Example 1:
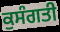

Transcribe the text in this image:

ਕੁਸੰਗਤੀ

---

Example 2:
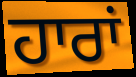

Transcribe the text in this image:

ਹਾਰਾਂ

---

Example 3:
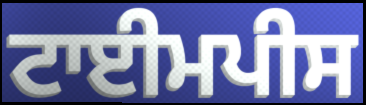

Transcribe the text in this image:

ਟਾਈਮਪੀਸ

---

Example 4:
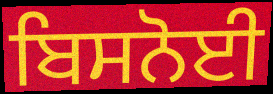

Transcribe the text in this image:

ਬਿਸਨੋਈ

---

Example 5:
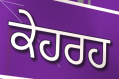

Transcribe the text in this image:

ਕੇਹਰਹ